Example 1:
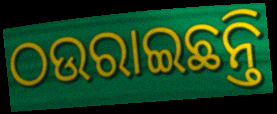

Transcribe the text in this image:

ଠଉରାଇଛନ୍ତି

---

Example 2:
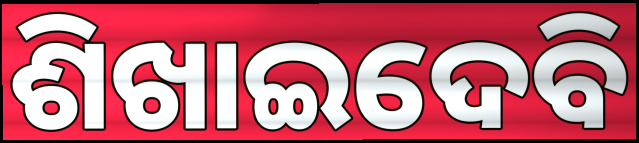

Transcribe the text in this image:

ଶିଖାଇଦେବି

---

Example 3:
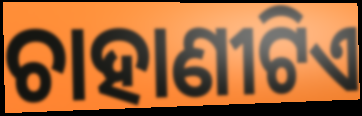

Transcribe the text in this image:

ଚାହାଣୀଟିଏ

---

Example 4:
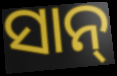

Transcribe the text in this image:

ସାନ୍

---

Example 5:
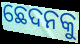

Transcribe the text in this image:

ଛେଦନକୁ